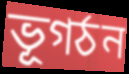
ভূগঠন